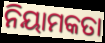
ନିୟାମକତା